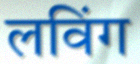
लविंग